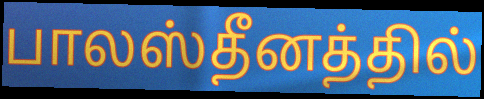
பாலஸ்தீனத்தில்